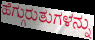
ಹೆಗ್ಗುರುತುಗಳನ್ನು